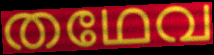
തഥേവ